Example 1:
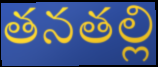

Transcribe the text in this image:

తనతల్లి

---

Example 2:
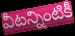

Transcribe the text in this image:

వీటన్నింటికీ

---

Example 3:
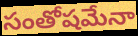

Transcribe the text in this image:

సంతోషమేనా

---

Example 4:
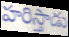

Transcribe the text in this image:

హరిస్తాడు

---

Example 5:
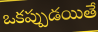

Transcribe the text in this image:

ఒకప్పుడయితే